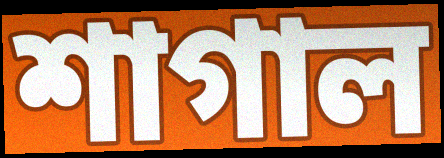
শাগাল